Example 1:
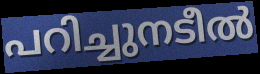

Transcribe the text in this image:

പറിച്ചുനടീൽ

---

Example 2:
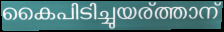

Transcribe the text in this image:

കൈപിടിച്ചുയര്ത്താന്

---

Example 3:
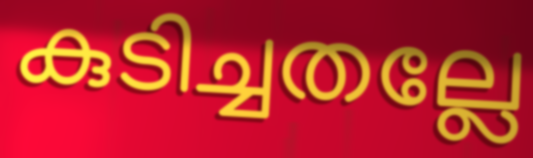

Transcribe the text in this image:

കുടിച്ചതല്ലേ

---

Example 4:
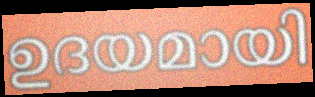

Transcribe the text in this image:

ഉദയമായി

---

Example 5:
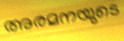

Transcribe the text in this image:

അരമനയുടെ